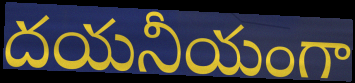
దయనీయంగా